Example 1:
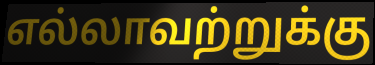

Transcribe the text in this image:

எல்லாவற்றுக்கு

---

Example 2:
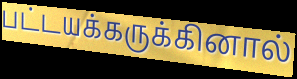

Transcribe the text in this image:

பட்டயக்கருக்கினால்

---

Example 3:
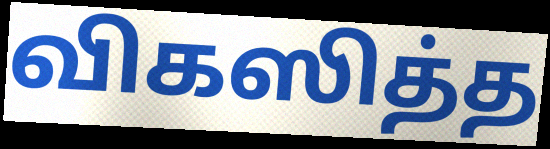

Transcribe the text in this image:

விகஸித்த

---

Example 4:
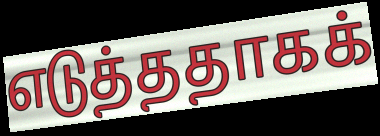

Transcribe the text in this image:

எடுத்ததாகக்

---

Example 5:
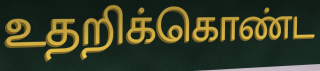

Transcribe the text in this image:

உதறிக்கொண்ட